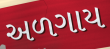
અળગાય